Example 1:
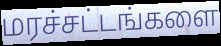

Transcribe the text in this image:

மரச்சட்டங்களை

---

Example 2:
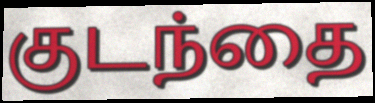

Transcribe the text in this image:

குடந்தை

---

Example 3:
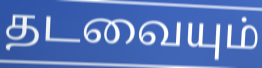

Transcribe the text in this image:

தடவையும்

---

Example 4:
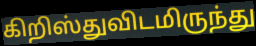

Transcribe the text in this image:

கிறிஸ்துவிடமிருந்து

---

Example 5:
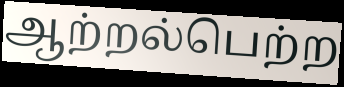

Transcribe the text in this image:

ஆற்றல்பெற்ற